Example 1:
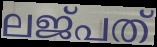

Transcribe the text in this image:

ലജ്പത്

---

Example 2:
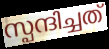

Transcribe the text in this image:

സ്പന്ദിച്ചത്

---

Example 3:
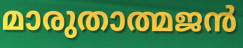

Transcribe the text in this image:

മാരുതാത്മജൻ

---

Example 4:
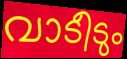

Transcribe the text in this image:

വാടീടും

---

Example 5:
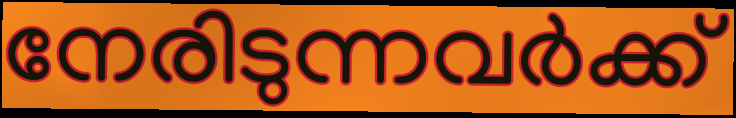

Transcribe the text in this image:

നേരിടുന്നവർക്ക്